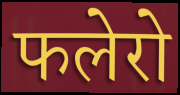
फलेरो